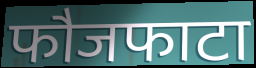
फौजफाटा